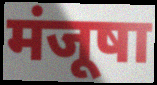
मंजूषा